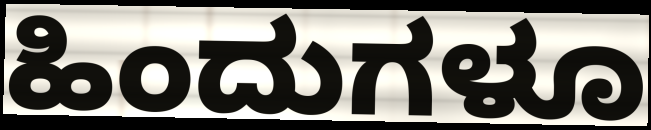
ಹಿಂದುಗಳೂ